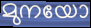
മുനയോ